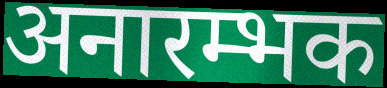
अनारम्भक